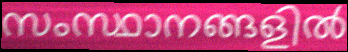
സംസ്ഥാനങ്ങളിൽ